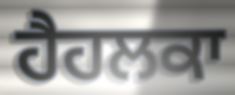
ਹੈਹਲਕਾ